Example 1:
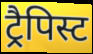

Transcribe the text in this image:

ट्रैपिस्ट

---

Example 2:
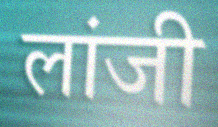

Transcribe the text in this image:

लांजी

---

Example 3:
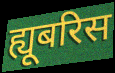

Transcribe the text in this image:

ह्यूबरिस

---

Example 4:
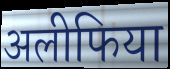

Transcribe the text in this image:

अलीफिया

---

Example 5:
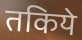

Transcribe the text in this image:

तकिये